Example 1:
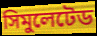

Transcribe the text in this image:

সিমুলেটেড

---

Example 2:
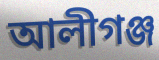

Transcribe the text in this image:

আলীগঞ্জ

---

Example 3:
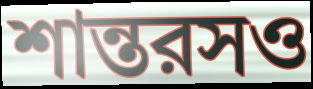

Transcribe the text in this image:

শান্তরসও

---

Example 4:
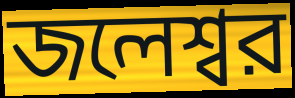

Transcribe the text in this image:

জলেশ্বর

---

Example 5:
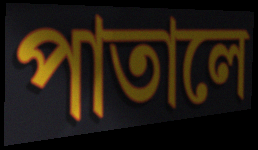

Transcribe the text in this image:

পাতালে